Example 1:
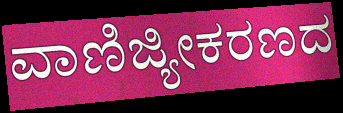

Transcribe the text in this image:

ವಾಣಿಜ್ಯೀಕರಣದ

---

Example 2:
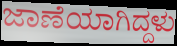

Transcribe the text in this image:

ಜಾಣೆಯಾಗಿದ್ದಳು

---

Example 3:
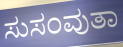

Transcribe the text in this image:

ಸುಸಂವುತಾ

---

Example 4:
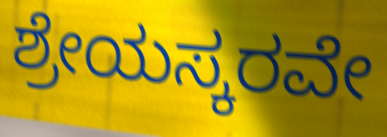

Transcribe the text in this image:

ಶ್ರೇಯಸ್ಕರವೇ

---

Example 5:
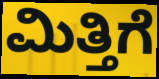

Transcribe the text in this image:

ಮಿತ್ತಿಗೆ